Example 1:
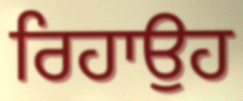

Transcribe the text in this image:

ਰਿਹਾਉਹ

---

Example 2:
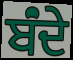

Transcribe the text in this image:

ਬਂੰਦੇ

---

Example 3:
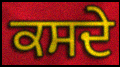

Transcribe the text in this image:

ਕਸਦੇ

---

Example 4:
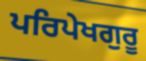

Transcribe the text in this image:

ਪਰਿਪੇਖਗੁਰੂ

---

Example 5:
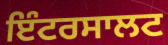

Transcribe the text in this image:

ਇੰਟਰਸਾਲਟ